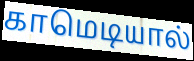
காமெடியால்